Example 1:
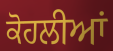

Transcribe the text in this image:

ਕੋਹਲੀਆਂ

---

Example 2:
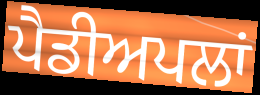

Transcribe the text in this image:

ਪੈਡੀਅਪਲਾਂ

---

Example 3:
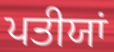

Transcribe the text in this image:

ਪਤੀਯਾਂ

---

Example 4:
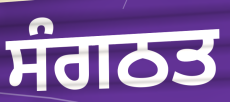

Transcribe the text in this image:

ਸੰਗਠਤ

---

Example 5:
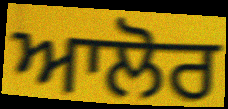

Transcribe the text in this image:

ਆਲੋਰ